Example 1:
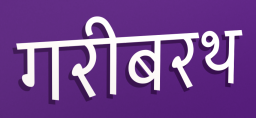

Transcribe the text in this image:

गरीबरथ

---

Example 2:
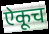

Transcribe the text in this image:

ऐकूच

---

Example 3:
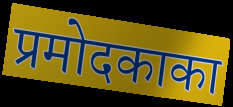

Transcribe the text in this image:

प्रमोदकाका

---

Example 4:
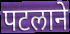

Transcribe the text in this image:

पटलाने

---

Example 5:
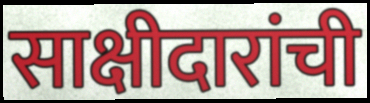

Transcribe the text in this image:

साक्षीदारांची